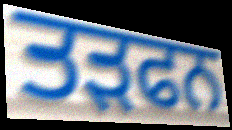
ਤੜਫਨ